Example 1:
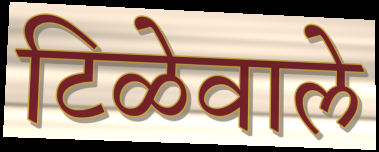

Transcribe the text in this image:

टिळेवाले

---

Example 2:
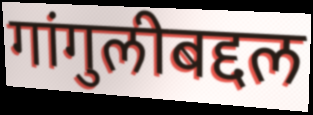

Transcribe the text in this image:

गांगुलीबद्दल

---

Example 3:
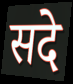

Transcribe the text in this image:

सदे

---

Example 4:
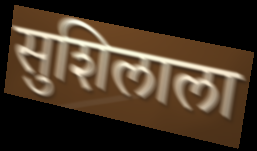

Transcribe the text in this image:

सुशिलाला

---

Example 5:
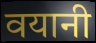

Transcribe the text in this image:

वयानी